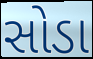
સોડા